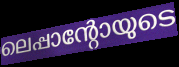
ലെപ്പാന്റോയുടെ